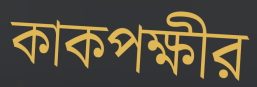
কাকপক্ষীর